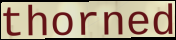
thorned